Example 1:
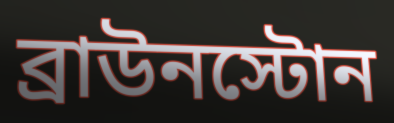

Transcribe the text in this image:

ব্রাউনস্টোন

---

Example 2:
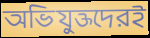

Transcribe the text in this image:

অভিযুক্তদেরই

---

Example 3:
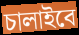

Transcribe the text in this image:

চালাইবে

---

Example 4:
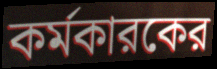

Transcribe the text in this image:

কর্মকারকের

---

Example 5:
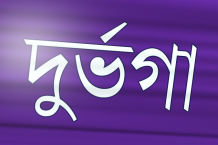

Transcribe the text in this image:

দুর্ভগা